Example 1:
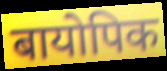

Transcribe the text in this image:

बायोपिक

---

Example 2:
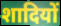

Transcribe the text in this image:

शादियों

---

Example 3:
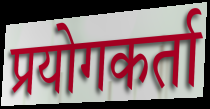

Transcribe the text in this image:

प्रयोगकर्ता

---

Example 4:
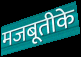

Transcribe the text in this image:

मजबूतीके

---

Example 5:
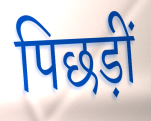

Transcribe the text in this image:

पिछड़ीं